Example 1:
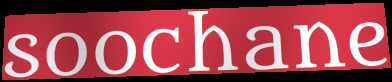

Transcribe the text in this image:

soochane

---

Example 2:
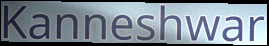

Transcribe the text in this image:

Kanneshwar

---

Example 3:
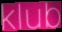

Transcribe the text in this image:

klub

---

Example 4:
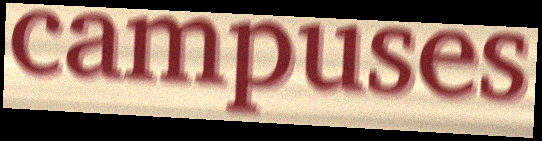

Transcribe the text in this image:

campuses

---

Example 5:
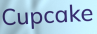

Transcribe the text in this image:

Cupcake